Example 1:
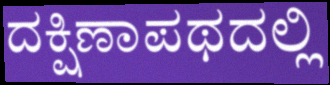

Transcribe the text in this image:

ದಕ್ಷಿಣಾಪಥದಲ್ಲಿ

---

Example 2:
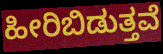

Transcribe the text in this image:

ಹೀರಿಬಿಡುತ್ತವೆ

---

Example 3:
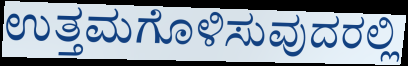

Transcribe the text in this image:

ಉತ್ತಮಗೊಳಿಸುವುದರಲ್ಲಿ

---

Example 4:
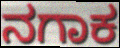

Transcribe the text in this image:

ನಗಾಕ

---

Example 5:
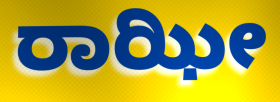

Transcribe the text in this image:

ರಾಝೀ